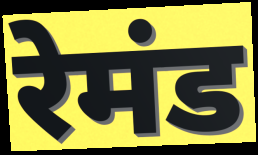
रेमंड